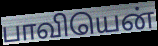
பாவியென்